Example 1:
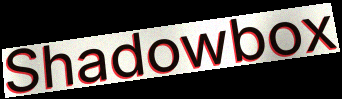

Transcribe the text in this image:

Shadowbox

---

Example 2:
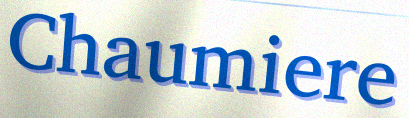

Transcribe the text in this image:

Chaumiere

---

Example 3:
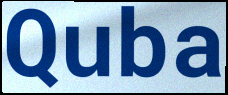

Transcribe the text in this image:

Quba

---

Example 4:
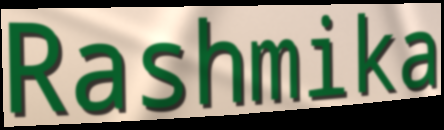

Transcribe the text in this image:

Rashmika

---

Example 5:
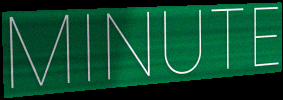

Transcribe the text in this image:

MINUTE